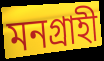
মনগ্রাহী